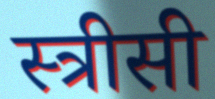
स्त्रीसी